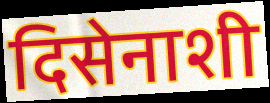
दिसेनाशी